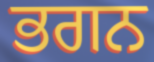
ਭਗਨ